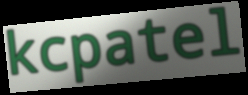
kcpatel